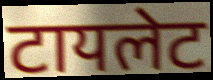
टायलेट